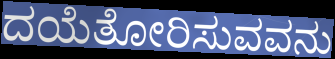
ದಯೆತೋರಿಸುವವನು